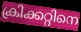
ക്രിക്കറ്റിനെ